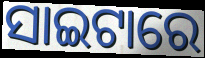
ସାଇଟାରେ